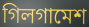
গিলগামেশ